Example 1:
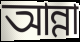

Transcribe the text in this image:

আন্না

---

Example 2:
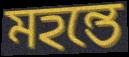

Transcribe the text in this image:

মহন্তে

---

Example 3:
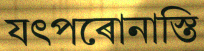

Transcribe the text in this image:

যৎপৰোনাস্তি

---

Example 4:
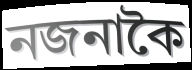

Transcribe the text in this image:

নজনাকৈ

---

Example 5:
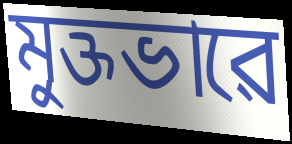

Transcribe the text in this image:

মুক্তভাৱে